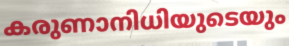
കരുണാനിധിയുടെയും